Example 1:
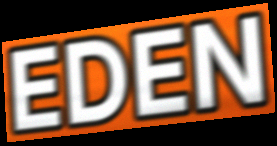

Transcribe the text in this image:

EDEN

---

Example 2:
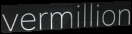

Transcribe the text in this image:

vermillion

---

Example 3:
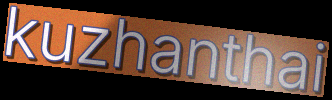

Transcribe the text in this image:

kuzhanthai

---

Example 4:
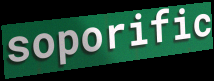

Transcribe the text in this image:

soporific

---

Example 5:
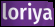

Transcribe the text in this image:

loriya